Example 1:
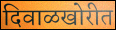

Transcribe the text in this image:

दिवाळखोरीत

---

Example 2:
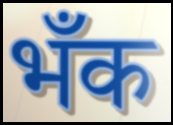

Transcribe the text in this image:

भँक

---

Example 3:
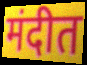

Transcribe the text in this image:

मंदीत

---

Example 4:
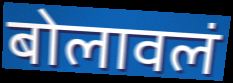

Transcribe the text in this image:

बोलावलं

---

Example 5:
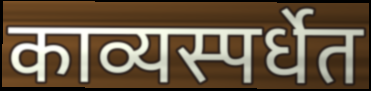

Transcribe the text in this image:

काव्यस्पर्धेत